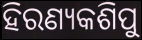
ହିରଣ୍ୟକଶିପୁ